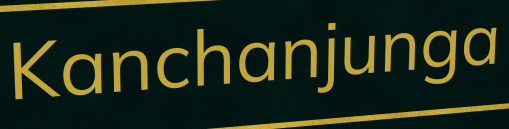
Kanchanjunga